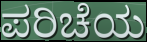
ಪರಿಚೆಯ